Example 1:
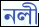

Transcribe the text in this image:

নলী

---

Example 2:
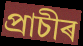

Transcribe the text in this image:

প্ৰাচীৰ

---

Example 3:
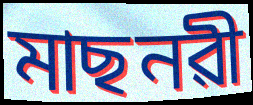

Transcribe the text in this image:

মাছনৱী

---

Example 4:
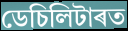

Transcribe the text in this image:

ডেচিলিটাৰত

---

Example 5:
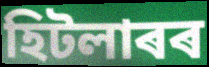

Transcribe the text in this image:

হিটলাৰৰ